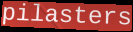
pilasters